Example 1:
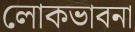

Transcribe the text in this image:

লোকভাবনা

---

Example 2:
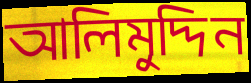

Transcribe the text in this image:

আলিমুদ্দিন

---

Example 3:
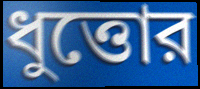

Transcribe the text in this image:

ধুত্তোর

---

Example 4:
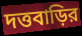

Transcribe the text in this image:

দত্তবাড়ির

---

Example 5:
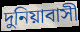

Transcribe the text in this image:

দুনিয়াবাসী